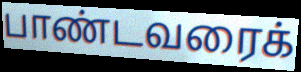
பாண்டவரைக்